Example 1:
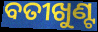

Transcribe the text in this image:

ବତୀଖୁଣ୍ଟ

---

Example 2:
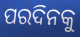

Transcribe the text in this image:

ପରଦିନକୁ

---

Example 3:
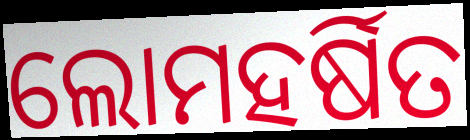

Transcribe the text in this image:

ଲୋମହର୍ଷିତ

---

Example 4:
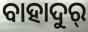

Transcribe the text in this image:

ବାହାଦୁର୍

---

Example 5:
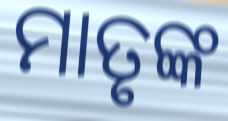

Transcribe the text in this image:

ମାତୃଙ୍କ